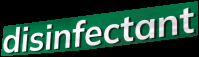
disinfectant